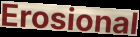
Erosional